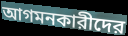
আগমনকারীদের